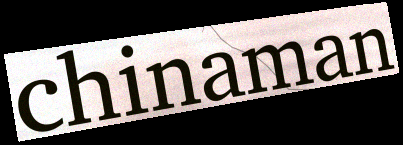
chinaman